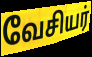
வேசியர்